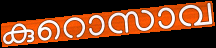
കുറൊസാവ